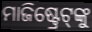
ମାଜିଷ୍ଟ୍ରେଟ୍‌ଙ୍କୁ